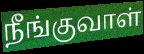
நீங்குவாள்